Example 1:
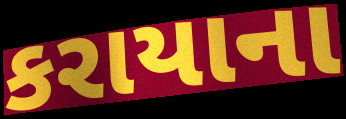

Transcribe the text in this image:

કરાયાના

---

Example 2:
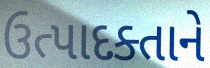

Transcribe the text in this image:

ઉત્પાદક્તાને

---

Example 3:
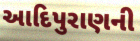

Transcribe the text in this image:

આદિપુરાણની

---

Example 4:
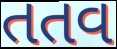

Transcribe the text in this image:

તતવ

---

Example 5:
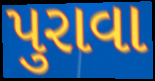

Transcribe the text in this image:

પુરાવા